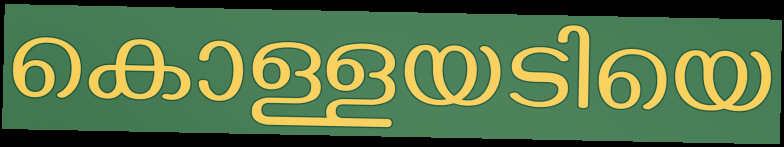
കൊള്ളയടിയെ